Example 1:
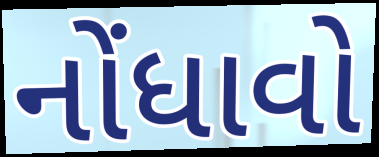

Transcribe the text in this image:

નોંધાવો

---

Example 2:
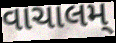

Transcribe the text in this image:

વાચાલમ્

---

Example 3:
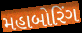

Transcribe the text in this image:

મહાબોરિંગ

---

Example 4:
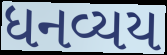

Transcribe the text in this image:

ધનવ્યય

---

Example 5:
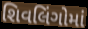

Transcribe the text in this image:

શિવલિંગોમાં